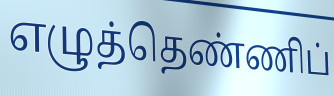
எழுத்தெண்ணிப்